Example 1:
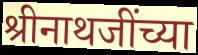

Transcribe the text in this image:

श्रीनाथजींच्या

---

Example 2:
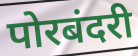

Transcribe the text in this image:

पोरबंदरी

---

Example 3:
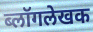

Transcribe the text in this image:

ब्लॉगलेखक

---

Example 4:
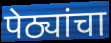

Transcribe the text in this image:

पेठ्यांचा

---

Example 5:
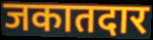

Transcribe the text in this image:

जकातदार